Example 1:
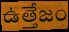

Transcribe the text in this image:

ఉత్తేజం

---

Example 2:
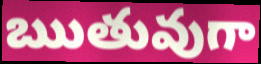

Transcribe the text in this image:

ఋతువుగా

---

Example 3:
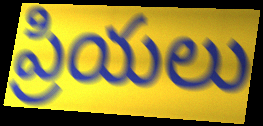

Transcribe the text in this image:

ప్రియలు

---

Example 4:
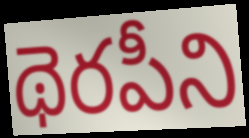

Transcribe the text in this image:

థెరపీని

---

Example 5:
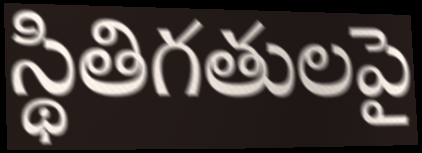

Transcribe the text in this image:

స్థితిగతులపై